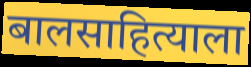
बालसाहित्याला